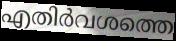
എതിർവശത്തെ